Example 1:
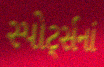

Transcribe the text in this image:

સ્પોર્ટ્સનાં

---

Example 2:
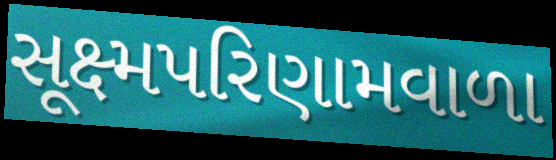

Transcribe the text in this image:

સૂક્ષ્મપરિણામવાળા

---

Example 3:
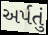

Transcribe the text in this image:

અર્પતું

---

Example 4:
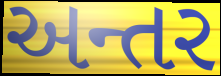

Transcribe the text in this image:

અન્તર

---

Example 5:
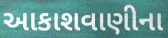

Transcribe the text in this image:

આકાશવાણીના